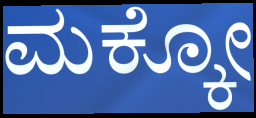
ಮಕ್ಕೋ